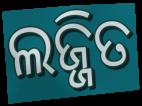
ଲଜ୍ଜିତ